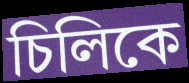
চিলিকে